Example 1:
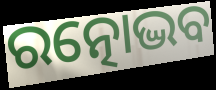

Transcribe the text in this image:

ରତ୍ନୋଦ୍ଭବ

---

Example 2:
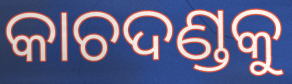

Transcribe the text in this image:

କାଚଦଣ୍ଡକୁ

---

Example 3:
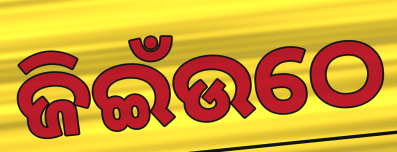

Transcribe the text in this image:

ଜିଇଁଉଠେ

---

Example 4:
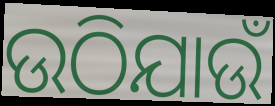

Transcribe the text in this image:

ଉଠିଯାଉଁ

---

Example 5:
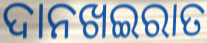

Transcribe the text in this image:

ଦାନଖଇରାତ